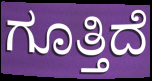
ಗೂತ್ತಿದೆ